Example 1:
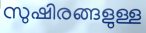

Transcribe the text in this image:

സുഷിരങ്ങളുള്ള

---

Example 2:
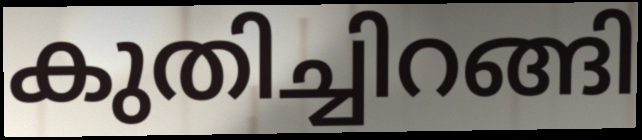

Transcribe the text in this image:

കുതിച്ചിറങ്ങി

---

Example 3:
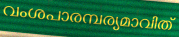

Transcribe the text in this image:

വംശപാരമ്പര്യമാവിത്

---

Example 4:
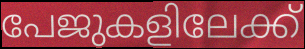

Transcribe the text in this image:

പേജുകളിലേക്ക്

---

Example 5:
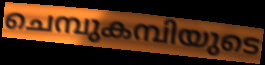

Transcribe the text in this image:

ചെമ്പുകമ്പിയുടെ